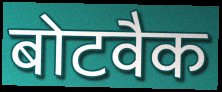
बोटवैक